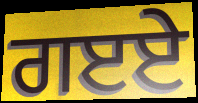
ਗੲਏ